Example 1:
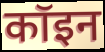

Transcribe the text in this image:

कॉइन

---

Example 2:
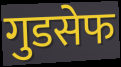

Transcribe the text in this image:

गुडसेफ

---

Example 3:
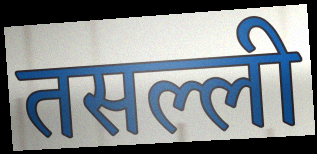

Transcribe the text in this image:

तसल्‍ली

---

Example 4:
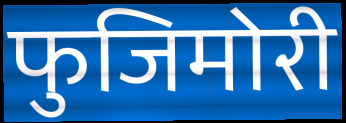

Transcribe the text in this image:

फुजिमोरी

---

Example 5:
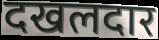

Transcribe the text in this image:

दखलदार